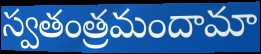
స్వతంత్రమందామా